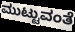
ಮುಟ್ಟುವಂತೆ